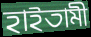
হাইতামী